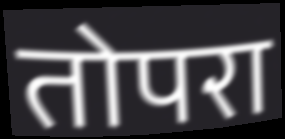
तोपरा